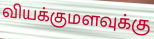
வியக்குமளவுக்கு